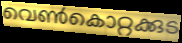
വെൺകൊറ്റക്കുട